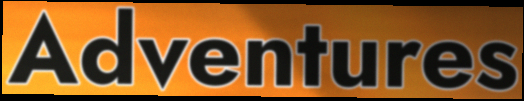
Adventures